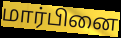
மார்பினை